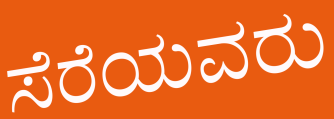
ಸೆರೆಯವರು